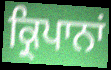
ਕ੍ਰਿਪਾਨਾਂ